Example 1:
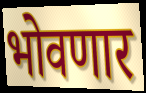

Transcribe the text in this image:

भोवणार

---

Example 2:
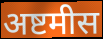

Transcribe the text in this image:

अष्टमीस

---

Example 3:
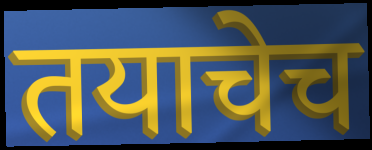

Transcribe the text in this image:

तयाचेच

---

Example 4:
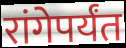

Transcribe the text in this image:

रांगेपर्यंत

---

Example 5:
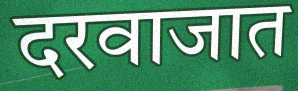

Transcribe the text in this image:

दरवाजात